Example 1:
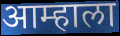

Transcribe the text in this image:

आम्हाला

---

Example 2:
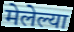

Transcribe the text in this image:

मेलेल्या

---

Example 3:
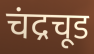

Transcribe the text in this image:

चंद्रचूड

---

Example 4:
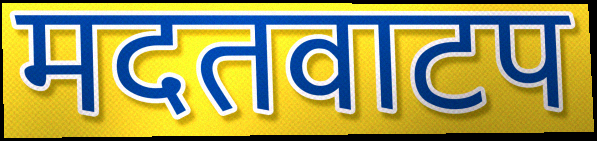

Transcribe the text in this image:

मदतवाटप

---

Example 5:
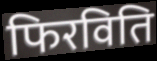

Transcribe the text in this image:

फिरविति